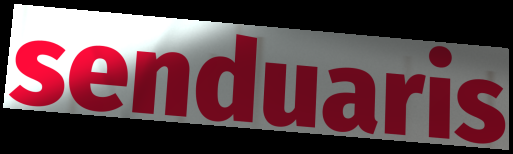
senduaris